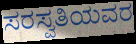
ಸರಸ್ವತಿಯವರ